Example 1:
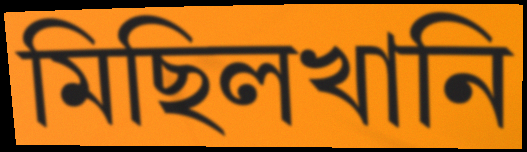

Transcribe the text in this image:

মিছিলখানি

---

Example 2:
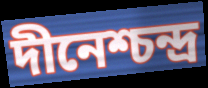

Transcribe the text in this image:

দীনেশ্চন্দ্র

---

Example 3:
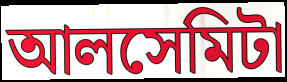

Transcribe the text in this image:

আলসেমিটা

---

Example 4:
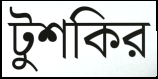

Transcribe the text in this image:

টুশকির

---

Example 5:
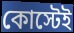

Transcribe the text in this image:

কোস্টেই